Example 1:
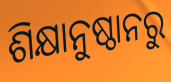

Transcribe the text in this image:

ଶିକ୍ଷାନୁଷ୍ଠାନରୁ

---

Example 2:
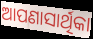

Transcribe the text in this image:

ଆପଣାସାର୍ଥିକା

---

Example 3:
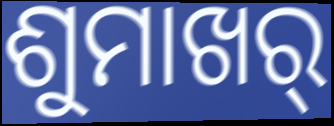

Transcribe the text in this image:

ଶୁମାଖର୍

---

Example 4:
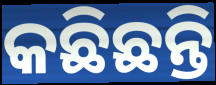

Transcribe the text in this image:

କଛିଛନ୍ତି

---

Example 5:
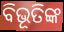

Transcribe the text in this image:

ବିଭୂତିଙ୍କ